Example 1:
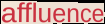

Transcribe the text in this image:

affluence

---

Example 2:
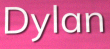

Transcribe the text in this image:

Dylan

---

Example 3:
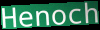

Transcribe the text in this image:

Henoch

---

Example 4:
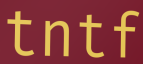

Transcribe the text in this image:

tntf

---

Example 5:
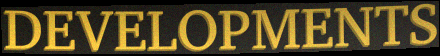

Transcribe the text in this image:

DEVELOPMENTS